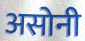
असोनी